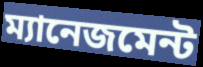
ম্যানেজমেন্ট